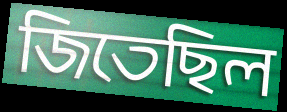
জিতেছিল